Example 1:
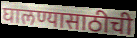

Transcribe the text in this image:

घालण्यासाठीची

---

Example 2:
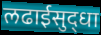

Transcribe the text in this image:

लढाईसुद्धा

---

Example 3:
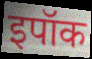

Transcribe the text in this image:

इपॉक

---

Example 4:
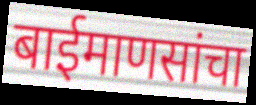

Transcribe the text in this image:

बाईमाणसांचा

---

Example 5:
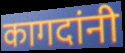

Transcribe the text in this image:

कागदांनी